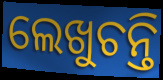
ଲେଖୁଚନ୍ତି